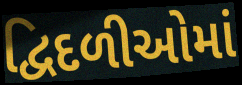
દ્વિદળીઓમાં